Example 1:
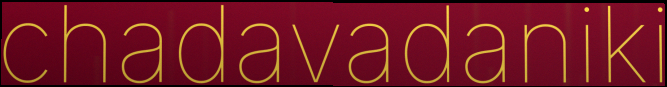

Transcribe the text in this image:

chadavadaniki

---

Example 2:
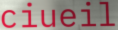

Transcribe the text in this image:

ciueil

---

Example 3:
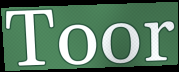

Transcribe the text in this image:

Toor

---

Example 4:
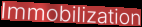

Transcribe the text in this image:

Immobilization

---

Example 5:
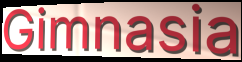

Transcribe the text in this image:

Gimnasia